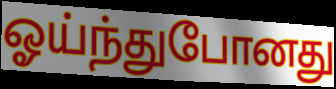
ஓய்ந்துபோனது